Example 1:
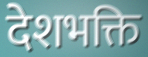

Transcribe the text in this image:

देशभक्ति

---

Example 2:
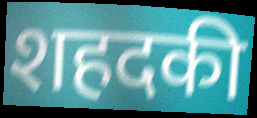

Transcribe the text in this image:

शहदकी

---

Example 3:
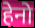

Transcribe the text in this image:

हेनो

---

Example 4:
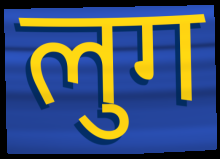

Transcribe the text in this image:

लुग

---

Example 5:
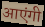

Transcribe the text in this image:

आएंगी